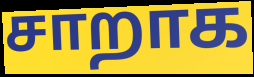
சாறாக